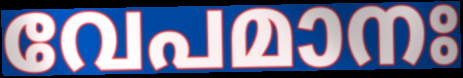
വേപമാനഃ